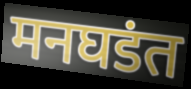
मनघडंत